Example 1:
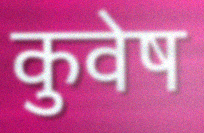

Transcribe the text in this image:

कुवेष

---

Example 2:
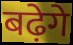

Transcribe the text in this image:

बढ़ेगे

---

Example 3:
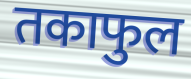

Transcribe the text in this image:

तकाफुल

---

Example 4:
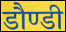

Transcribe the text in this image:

डौण्डी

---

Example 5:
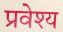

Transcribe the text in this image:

प्रवेश्य